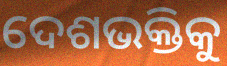
ଦେଶଭକ୍ତିକୁ